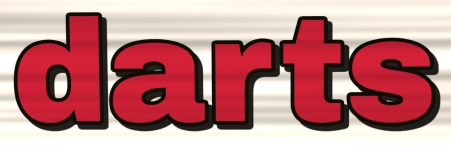
darts